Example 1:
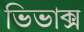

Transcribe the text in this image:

ভিভাক্স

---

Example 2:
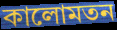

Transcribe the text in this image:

কালোমতন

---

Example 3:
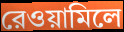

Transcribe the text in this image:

রেওয়ামিলে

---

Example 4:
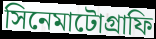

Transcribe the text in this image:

সিনেমাটোগ্রাফি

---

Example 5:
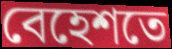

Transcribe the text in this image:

বেহেশতে